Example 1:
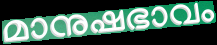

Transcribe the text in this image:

മാനുഷഭാവം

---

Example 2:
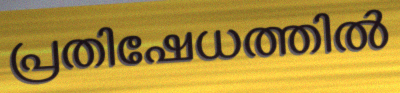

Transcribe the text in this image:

പ്രതിഷേധത്തിൽ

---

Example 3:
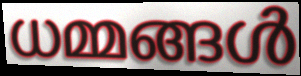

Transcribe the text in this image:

ധമ്മങ്ങൾ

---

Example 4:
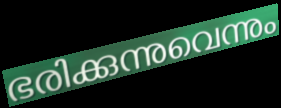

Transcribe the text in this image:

ഭരിക്കുന്നുവെന്നും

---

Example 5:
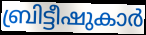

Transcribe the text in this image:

ബ്രിട്ടീഷുകാർ